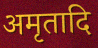
अमृतादि